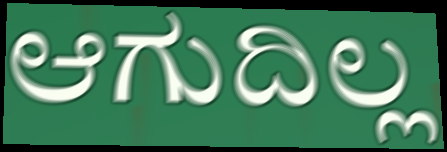
ಆಗುದಿಲ್ಲ